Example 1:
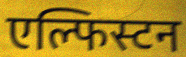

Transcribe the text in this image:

एल्फिस्टन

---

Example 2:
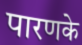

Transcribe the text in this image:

पारणके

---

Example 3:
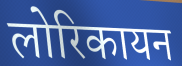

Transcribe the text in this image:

लोरिकायन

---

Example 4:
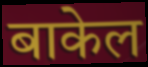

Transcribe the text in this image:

बाकेल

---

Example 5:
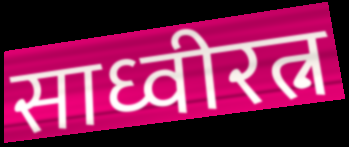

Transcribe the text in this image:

साध्वीरत्न